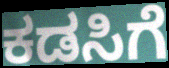
ಕಡಸಿಗೆ